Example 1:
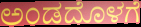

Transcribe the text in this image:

ಅಂಡದೊಳಗೆ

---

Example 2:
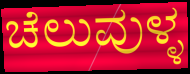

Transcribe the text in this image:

ಚೆಲುವುಳ್ಳ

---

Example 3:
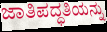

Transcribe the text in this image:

ಜಾತಿಪದ್ಧತಿಯನ್ನು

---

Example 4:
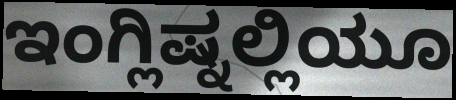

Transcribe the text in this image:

ಇಂಗ್ಲಿಷ್ನಲ್ಲಿಯೂ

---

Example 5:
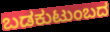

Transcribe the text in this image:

ಬಡಕುಟುಂಬದ